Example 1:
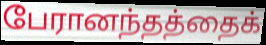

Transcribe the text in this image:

பேரானந்தத்தைக்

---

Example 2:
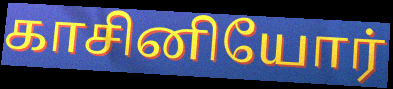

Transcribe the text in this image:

காசினியோர்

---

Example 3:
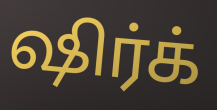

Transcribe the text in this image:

ஷிர்க்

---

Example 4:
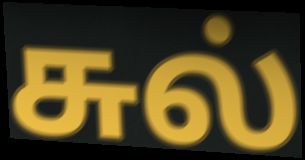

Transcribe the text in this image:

சுல்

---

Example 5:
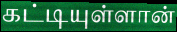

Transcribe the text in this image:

கட்டியுள்ளான்